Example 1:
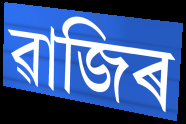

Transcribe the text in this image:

ৱাজিৰ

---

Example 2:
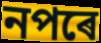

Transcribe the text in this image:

নপৰে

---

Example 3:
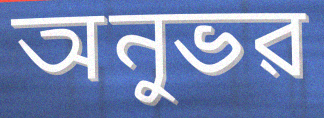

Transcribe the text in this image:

অনুভৱ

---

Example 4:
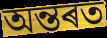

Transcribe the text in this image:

অন্তৰত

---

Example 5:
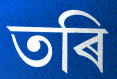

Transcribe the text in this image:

তৰি